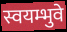
स्वयम्भुवे